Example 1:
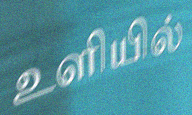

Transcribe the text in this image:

உளியில்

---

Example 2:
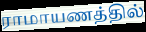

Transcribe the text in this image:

ராமாயணத்தில்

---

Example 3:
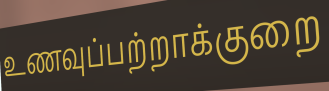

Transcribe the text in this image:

உணவுப்பற்றாக்குறை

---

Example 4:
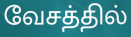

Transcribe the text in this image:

வேசத்தில்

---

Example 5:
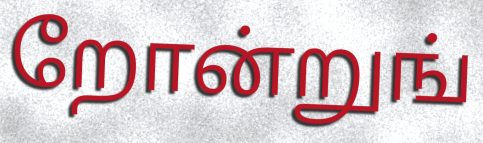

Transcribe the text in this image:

றோன்றுங்